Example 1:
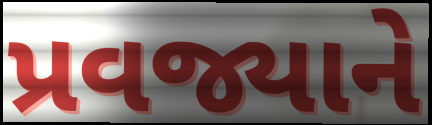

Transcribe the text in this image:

પ્રવજ્યાને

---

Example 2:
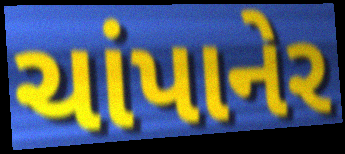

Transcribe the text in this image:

ચાંપાનેર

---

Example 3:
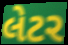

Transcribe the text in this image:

લેટર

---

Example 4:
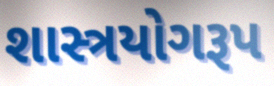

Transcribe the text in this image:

શાસ્ત્રયોગરૂપ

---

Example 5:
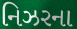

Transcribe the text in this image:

નિઝરના